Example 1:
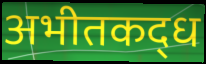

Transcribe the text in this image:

अभीतकद्ध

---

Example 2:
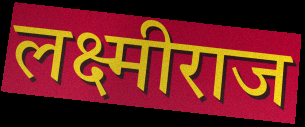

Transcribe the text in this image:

लक्ष्मीराज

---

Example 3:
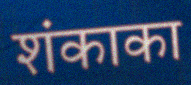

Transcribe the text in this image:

शंकाका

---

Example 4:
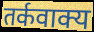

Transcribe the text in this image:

तर्कवाक्य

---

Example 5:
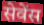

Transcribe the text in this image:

सेवेंस